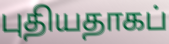
புதியதாகப்